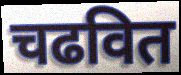
चढवित